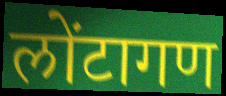
लोंटागण